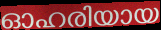
ഓഹരിയായ